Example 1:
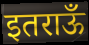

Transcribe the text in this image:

इतराऊँ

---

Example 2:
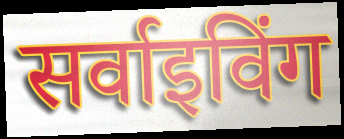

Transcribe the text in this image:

सर्वाइविंग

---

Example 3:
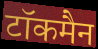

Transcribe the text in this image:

टॉकमैन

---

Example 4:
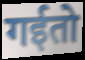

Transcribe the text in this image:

गईतो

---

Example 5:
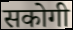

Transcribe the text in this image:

सकोगी